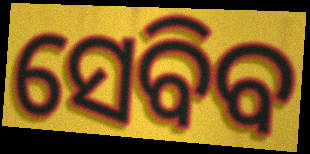
ସେବିବ